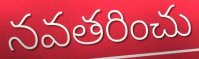
నవతరించు